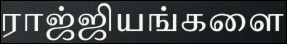
ராஜ்ஜியங்களை